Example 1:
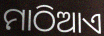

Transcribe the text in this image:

ମାଠିଆଏ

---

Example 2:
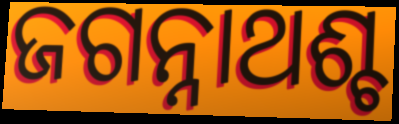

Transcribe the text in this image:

ଜଗନ୍ନାଥଶ୍ଚ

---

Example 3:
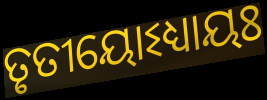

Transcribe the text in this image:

ତୃତୀୟୋଽଧ୍ୟାୟଃ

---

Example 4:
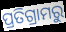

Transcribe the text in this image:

ପ୍ରତିଗ୍ରାମରୁ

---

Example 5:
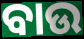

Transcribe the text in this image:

ବାଉ